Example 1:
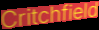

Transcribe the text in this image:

Critchfield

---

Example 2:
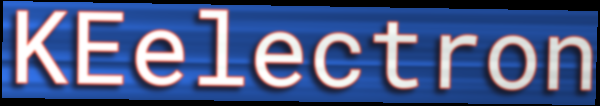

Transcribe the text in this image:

KEelectron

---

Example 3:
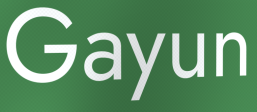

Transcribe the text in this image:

Gayun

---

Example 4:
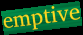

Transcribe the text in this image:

emptive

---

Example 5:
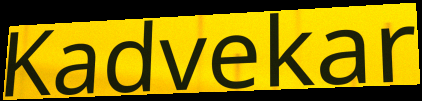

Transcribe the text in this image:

Kadvekar